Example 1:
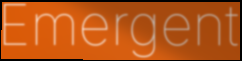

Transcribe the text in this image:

Emergent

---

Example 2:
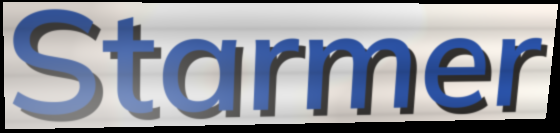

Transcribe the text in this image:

Starmer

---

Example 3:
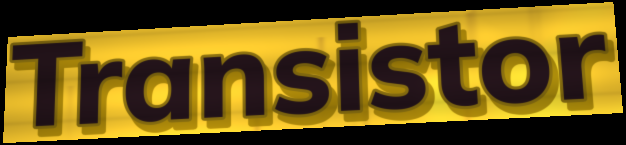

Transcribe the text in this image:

Transistor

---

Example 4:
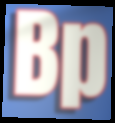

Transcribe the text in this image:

Bp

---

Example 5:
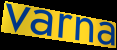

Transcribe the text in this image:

varna